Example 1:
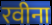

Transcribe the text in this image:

रवीना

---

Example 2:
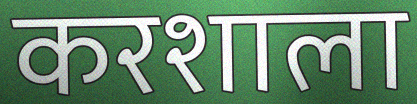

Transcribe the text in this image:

करशाला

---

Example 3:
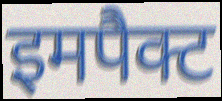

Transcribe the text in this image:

इमपैक्ट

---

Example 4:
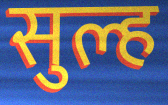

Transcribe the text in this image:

सुल्ह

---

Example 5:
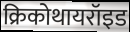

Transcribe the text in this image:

क्रिकोथायरॉइड